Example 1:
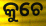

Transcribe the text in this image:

କୁଚେ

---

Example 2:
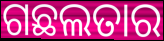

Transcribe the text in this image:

ଗଛଲତାର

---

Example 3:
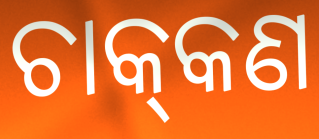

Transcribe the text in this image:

ଚାକ୍‌କଣ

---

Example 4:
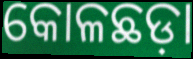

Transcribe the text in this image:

କୋଳଛଡ଼ା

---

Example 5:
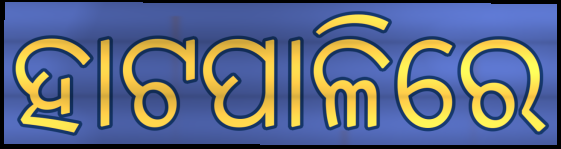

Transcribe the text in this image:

ହାଟପାଳିରେ